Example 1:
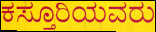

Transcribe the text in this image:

ಕಸ್ತೂರಿಯವರು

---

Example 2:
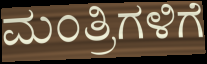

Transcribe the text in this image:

ಮಂತ್ರಿಗಳಿಗೆ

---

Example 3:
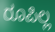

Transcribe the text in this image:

ರೂಪಿಲ್ಲ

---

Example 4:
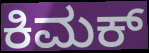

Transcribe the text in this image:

ಕಿಮಕ್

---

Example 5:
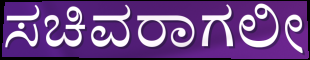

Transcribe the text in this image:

ಸಚಿವರಾಗಲೀ